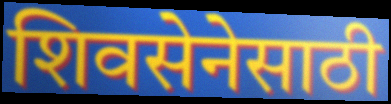
शिवसेनेसाठी